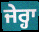
ਜੇਰ੍ਹਾ